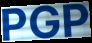
PGP